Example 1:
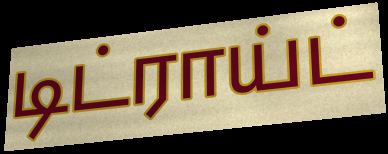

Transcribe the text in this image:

டிட்ராய்ட்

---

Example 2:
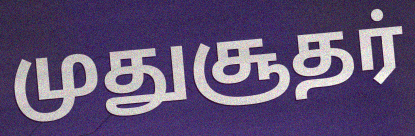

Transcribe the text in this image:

முதுசூதர்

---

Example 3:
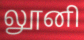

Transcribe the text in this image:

லூனி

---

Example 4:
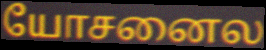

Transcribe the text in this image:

யோசனைல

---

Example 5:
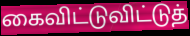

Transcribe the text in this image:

கைவிட்டுவிட்டுத்